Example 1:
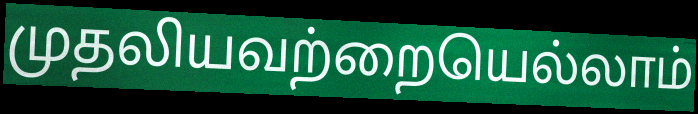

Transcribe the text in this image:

முதலியவற்றையெல்லாம்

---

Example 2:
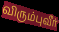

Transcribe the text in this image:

விரும்புவீர்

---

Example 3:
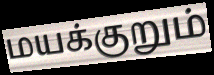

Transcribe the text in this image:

மயக்குறும்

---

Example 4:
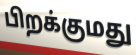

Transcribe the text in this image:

பிறக்குமது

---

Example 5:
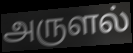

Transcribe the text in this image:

அருளல்